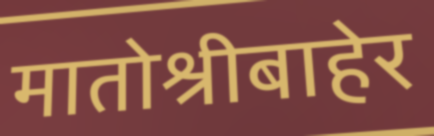
मातोश्रीबाहेर